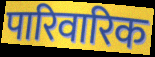
पारिवारिक